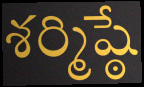
శర్మిష్ఠే